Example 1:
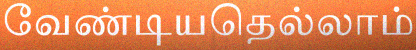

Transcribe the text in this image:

வேண்டியதெல்லாம்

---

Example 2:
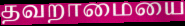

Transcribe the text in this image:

தவறாமையை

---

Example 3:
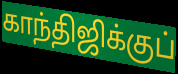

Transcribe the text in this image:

காந்திஜிக்குப்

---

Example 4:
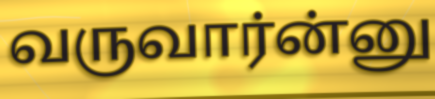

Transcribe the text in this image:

வருவார்ன்னு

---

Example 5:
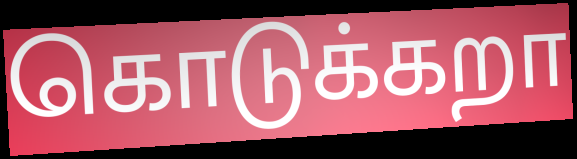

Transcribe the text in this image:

கொடுக்கறா